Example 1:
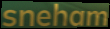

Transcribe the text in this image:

sneham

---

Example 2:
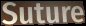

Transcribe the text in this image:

Suture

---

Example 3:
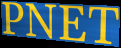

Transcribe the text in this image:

PNET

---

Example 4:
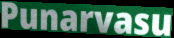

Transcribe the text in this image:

Punarvasu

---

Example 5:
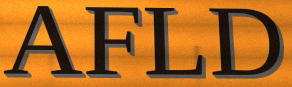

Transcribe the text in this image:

AFLD